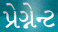
પ્રેગ્નેન્ટ